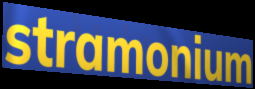
stramonium